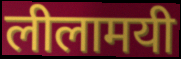
लीलामयी